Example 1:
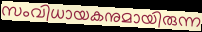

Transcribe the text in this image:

സംവിധായകനുമായിരുന്ന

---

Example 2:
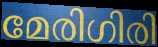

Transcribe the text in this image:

മേരിഗിരി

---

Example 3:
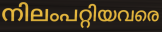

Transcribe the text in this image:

നിലംപറ്റിയവരെ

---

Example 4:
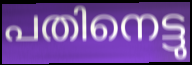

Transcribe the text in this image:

പതിനെട്ടു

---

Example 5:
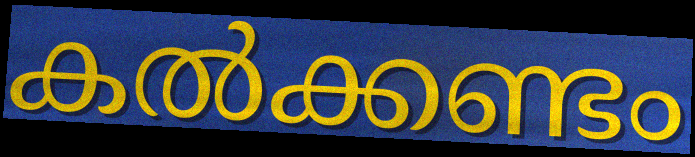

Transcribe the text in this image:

കൽക്കണ്ടം